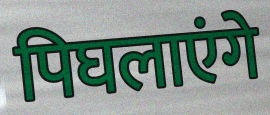
पिघलाएंगे